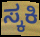
ಸ್ಕಕಿ